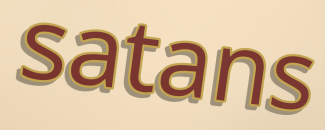
satans